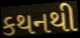
કથનથી